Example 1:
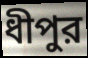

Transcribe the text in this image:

ধীপুর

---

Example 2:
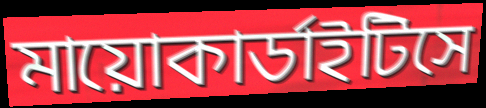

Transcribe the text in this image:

মায়োকার্ডাইটিসে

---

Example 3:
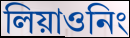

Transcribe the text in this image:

লিয়াওনিং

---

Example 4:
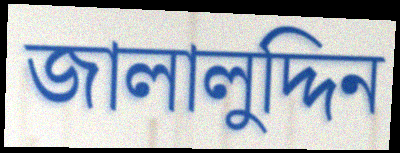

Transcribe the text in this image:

জালালুদ্দিন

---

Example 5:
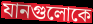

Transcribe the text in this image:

যানগুলোকে